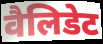
वैलिडेट